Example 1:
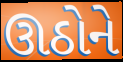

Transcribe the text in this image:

ઊઠોને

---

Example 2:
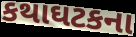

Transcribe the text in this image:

કથાઘટકના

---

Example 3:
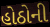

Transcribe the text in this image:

હોઠોની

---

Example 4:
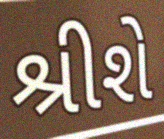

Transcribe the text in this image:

શ્રીશે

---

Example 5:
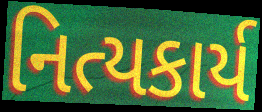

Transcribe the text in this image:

નિત્યકાર્ય